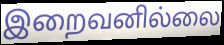
இறைவனில்லை